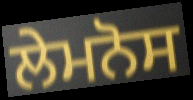
ਲੇਮਨੋਸ